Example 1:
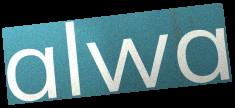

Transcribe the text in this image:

alwa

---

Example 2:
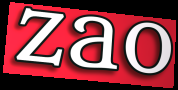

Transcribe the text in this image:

zao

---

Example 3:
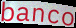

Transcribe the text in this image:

banco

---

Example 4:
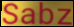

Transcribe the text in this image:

Sabz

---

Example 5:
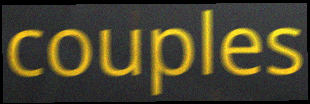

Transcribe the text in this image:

couples